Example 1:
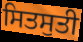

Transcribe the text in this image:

ਸਿਤਸੁਤੀ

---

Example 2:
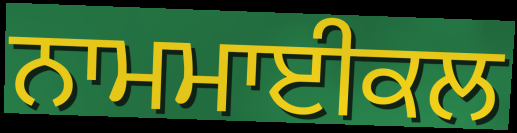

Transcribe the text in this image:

ਨਾਮਮਾਈਕਲ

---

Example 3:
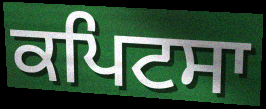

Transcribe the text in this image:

ਕਪਿਟਸਾ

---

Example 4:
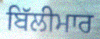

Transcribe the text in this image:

ਬਿੱਲੀਮਾਰ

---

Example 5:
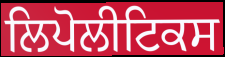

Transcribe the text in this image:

ਲਿਪੋਲੀਟਿਕਸ